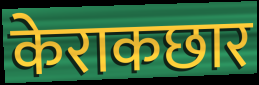
केराकछार